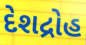
દેશદ્રોહ